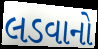
લડવાનો